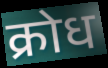
क्रोध